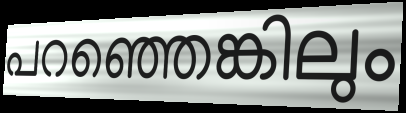
പറഞ്ഞെങ്കിലും